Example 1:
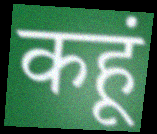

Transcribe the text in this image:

कहूं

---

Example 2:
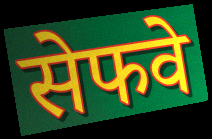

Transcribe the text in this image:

सेफवे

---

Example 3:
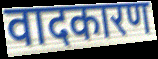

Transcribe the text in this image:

वादकारण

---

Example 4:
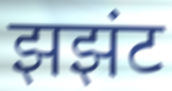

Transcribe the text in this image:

झझंट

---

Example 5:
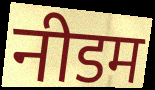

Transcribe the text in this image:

नीडम